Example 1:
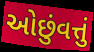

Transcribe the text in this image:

ઓછુંવત્તું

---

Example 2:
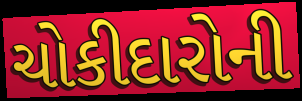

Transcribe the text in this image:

ચોકીદારોની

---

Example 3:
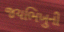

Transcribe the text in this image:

જયભિખુની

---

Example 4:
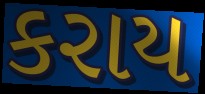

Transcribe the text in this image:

કરાય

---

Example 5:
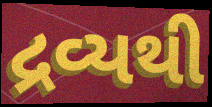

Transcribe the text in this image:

દ્રવ્યથી